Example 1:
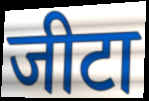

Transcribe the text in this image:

जीटा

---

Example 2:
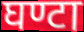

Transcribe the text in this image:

घण्टा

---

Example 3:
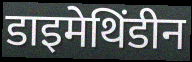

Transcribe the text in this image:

डाइमेथिंडीन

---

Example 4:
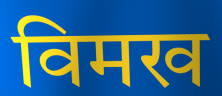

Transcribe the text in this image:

विमख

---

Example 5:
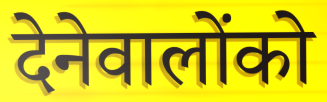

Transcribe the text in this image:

देनेवालोंको